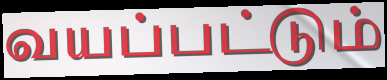
வயப்பட்டும்